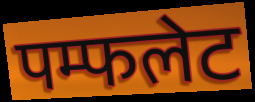
पम्फलेट